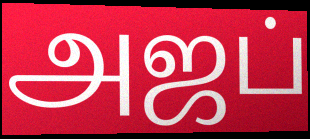
அஜப்